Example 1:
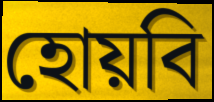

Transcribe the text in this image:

হোয়বি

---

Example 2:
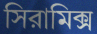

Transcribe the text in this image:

সিরামিক্স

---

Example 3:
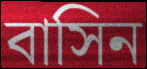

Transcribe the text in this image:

বাসিন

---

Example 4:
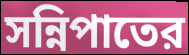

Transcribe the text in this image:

সন্নিপাতের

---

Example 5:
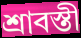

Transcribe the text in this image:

শ্রাবস্তী